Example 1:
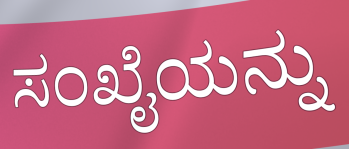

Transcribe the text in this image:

ಸಂಖೈಯನ್ನು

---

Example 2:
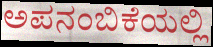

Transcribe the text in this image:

ಅಪನಂಬಿಕೆಯಲ್ಲಿ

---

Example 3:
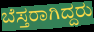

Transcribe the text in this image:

ಬೆಸ್ತರಾಗಿದ್ದರು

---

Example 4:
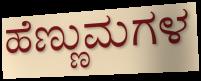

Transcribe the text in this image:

ಹೆಣ್ಣುಮಗಳ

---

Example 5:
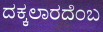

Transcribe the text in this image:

ದಕ್ಕಲಾರದೆಂಬ